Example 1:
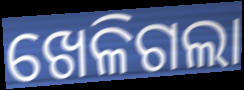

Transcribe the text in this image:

ଖେଳିଗଲା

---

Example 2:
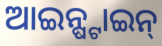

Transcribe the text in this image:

ଆଇନ୍ଷ୍ଟାଇନ୍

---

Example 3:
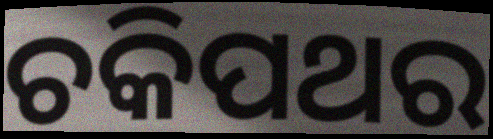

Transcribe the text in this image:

ଚକିପଥର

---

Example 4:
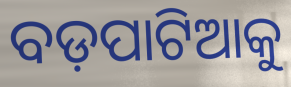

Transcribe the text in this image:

ବଡ଼ପାଟିଆକୁ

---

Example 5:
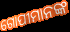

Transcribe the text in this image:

ଗୋପୀମାନଙ୍କ